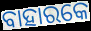
ବାହାରକେ